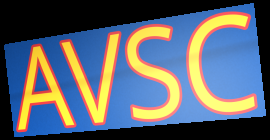
AVSC